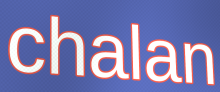
chalan